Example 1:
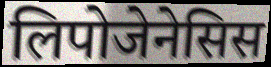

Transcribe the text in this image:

लिपोजेनेसिस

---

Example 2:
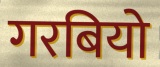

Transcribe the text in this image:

गरबियो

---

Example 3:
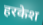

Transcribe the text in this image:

हरकेश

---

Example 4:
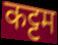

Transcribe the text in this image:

कट्टम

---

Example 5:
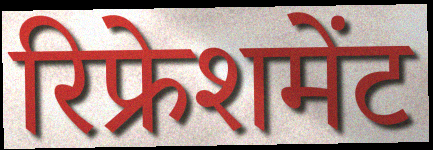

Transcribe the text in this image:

रिफ्रेशमेंट